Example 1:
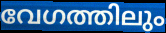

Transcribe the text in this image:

വേഗത്തിലും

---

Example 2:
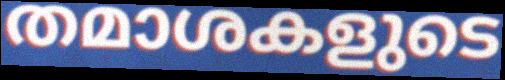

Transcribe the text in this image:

തമാശകളുടെ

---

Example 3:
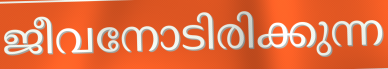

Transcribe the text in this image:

ജീവനോടിരിക്കുന്ന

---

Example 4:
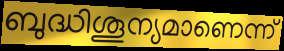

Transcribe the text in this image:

ബുദ്ധിശൂന്യമാണെന്ന്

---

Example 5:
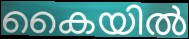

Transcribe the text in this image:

കൈയിൽ